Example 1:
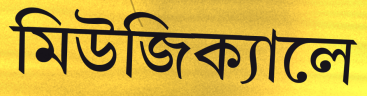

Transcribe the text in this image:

মিউজিক্যালে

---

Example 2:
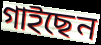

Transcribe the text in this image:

গাইছেন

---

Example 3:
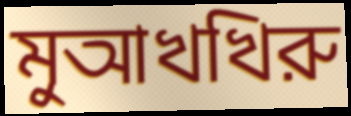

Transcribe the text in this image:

মুআখখিরু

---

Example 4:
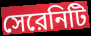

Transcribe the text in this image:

সেরেনিটি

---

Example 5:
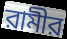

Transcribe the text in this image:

রামীর